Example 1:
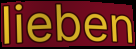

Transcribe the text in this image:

lieben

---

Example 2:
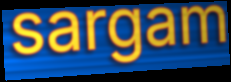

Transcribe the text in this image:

sargam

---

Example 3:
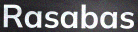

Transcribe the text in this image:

Rasabas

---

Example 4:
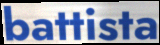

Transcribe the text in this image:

battista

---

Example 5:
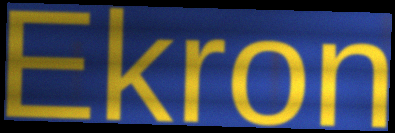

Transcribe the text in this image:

Ekron